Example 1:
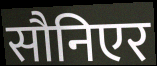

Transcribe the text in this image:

सौनिएर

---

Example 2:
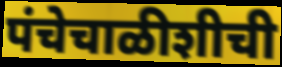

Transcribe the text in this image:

पंचेचाळीशीची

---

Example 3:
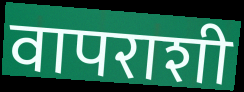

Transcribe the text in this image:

वापराशी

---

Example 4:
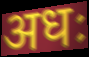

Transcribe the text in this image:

अधः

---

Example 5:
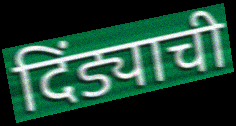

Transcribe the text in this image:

दिंड्याची